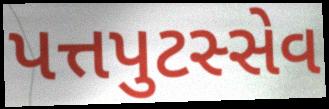
પત્તપુટસ્સેવ